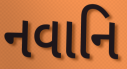
નવાનિ